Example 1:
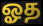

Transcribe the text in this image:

ஓத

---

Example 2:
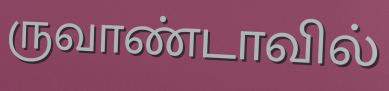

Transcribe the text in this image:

ருவாண்டாவில்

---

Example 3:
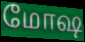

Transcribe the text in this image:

மோஷ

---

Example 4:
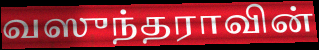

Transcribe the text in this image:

வஸுந்தராவின்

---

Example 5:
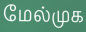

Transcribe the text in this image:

மேல்முக